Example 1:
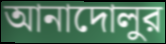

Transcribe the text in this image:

আনাদোলুর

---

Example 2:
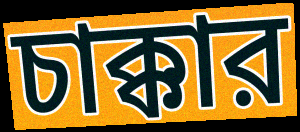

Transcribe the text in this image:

চাক্কার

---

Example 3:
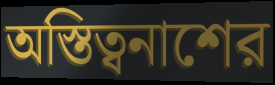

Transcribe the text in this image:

অস্তিত্বনাশের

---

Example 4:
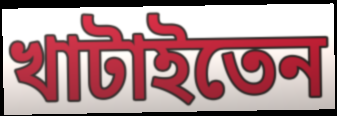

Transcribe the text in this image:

খাটাইতেন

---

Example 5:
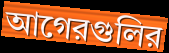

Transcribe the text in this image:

আগেরগুলির